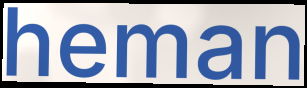
heman